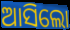
ଆସିଲୋ